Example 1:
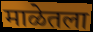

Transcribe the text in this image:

माळेतला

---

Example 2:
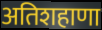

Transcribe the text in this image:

अतिशहाणा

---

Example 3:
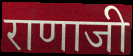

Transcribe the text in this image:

राणाजी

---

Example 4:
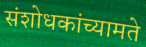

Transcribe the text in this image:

संशोधकांच्यामते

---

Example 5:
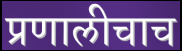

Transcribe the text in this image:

प्रणालीचाच